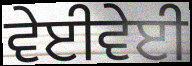
ਵੇਈਵੇਈ